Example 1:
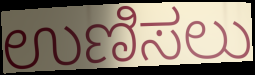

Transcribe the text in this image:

ಉಣಿಸಲು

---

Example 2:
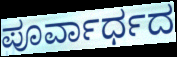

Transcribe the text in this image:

ಪೂರ್ವಾರ್ಧದ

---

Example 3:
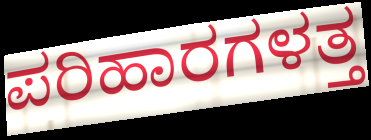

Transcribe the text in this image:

ಪರಿಹಾರಗಳತ್ತ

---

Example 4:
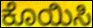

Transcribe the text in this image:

ಕೊಯಿಸಿ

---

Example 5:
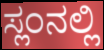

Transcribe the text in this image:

ಸ್ಲಂನಲ್ಲಿ